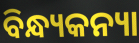
ବିନ୍ଧ୍ୟକନ୍ୟା